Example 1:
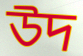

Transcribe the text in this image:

উদ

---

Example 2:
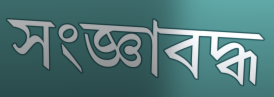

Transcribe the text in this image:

সংজ্ঞাবদ্ধ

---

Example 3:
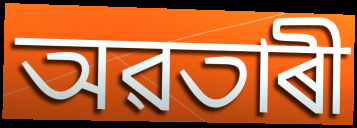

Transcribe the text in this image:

অৱতাৰী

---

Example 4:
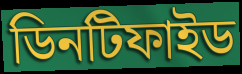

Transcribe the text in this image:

ডিনটিফাইড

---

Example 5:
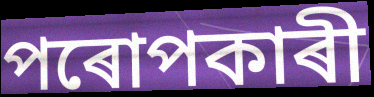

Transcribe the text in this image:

পৰোপকাৰী